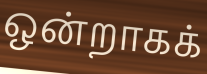
ஒன்றாகக்